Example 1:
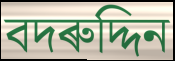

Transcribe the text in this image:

বদৰুদ্দিন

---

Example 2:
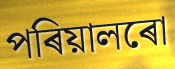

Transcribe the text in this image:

পৰিয়ালৰো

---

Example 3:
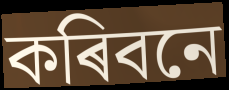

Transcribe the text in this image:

কৰিবনে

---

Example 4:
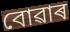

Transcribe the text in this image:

বোৱাৰ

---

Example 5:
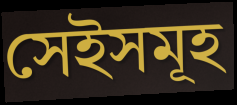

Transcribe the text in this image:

সেইসমূহ